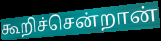
கூறிச்சென்றான்